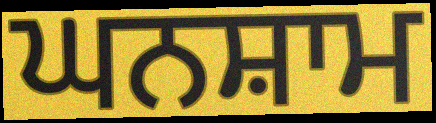
ਘਨਸ਼ਾਮ